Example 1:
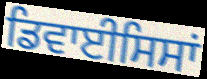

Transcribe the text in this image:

ਡਿਵਾਈਸਿਸਾਂ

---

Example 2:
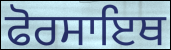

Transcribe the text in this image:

ਫੋਰਸਾਇਥ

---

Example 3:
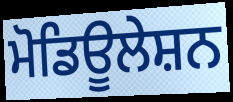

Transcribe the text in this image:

ਮੋਡਿਊਲੇਸ਼ਨ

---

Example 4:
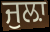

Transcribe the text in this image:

ਜੁਲ਼ਾ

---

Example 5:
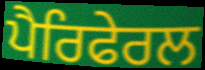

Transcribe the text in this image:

ਪੈਰਿਫੇਰਲ